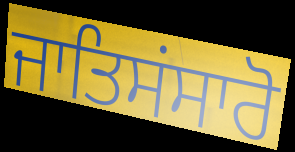
ਜਾਤਿਸਂਸਾਰੋ